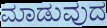
ಮಾಡುವುದ